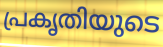
പ്രകൃതിയുടെ